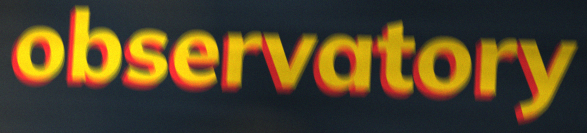
observatory